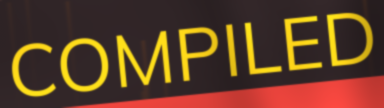
COMPILED